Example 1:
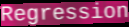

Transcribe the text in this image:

Regression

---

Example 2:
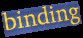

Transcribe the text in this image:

binding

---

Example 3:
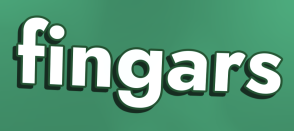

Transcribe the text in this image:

fingars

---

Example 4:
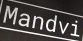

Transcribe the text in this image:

Mandvi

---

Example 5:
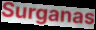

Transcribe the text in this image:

Surganas